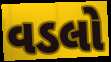
વડલો